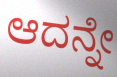
ಆದನ್ನೇ